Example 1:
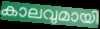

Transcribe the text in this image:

കാലവുമായി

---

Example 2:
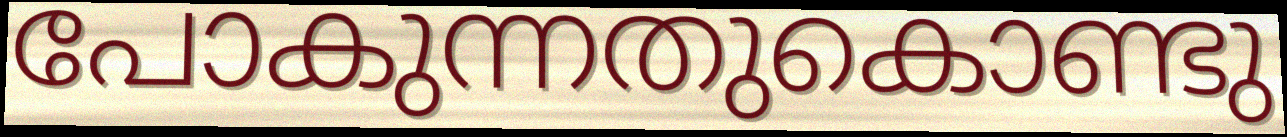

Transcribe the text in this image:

പോകുന്നതുകൊണ്ടു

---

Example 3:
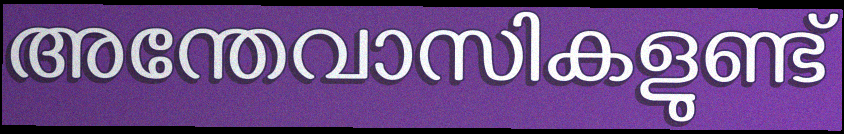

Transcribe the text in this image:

അന്തേവാസികളുണ്ട്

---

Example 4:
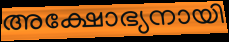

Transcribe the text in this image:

അക്ഷോഭ്യനായി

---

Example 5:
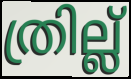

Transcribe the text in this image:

ത്രില്ല്